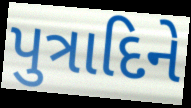
પુત્રાદિને